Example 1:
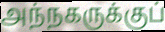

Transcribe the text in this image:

அந்நகருக்குப்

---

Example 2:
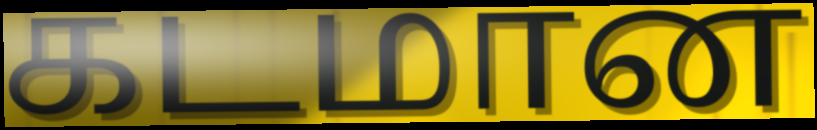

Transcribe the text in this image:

கடமான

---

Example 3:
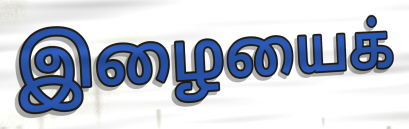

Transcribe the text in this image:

இழையைக்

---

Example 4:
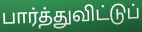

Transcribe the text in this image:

பார்த்துவிட்டுப்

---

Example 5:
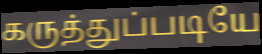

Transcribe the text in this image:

கருத்துப்படியே